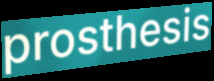
prosthesis